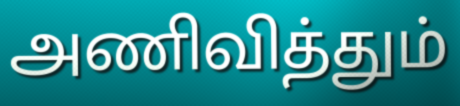
அணிவித்தும்